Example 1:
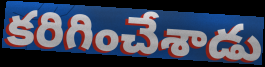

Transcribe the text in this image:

కరిగించేశాడు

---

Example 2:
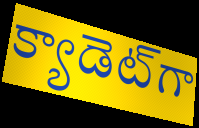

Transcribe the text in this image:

క్యాడెట్‌గా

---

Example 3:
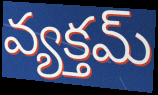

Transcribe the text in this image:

వ్యక్తమ్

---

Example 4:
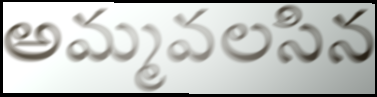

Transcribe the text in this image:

అమ్మవలసిన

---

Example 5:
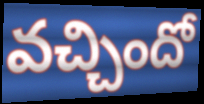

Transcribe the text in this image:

వచ్చిందో